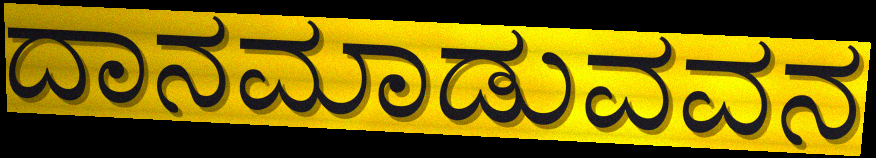
ದಾನಮಾಡುವವನ